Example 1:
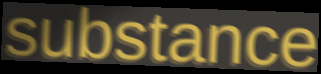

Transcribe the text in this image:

substance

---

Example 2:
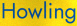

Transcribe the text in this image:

Howling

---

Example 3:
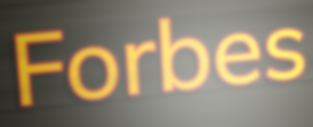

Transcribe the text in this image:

Forbes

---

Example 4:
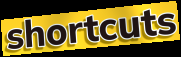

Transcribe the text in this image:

shortcuts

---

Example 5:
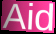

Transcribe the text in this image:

Aid